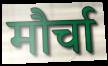
मौर्चा